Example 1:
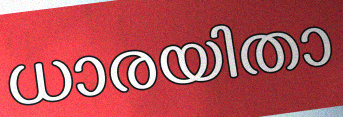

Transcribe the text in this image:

ധാരയിതാ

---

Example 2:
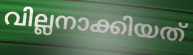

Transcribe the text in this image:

വില്ലനാക്കിയത്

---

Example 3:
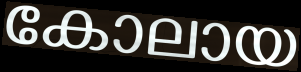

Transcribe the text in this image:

കോലായ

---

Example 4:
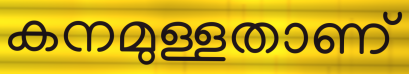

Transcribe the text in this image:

കനമുള്ളതാണ്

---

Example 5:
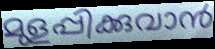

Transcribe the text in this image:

മുളപ്പിക്കുവാൻ